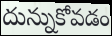
దున్నుకోవడం